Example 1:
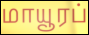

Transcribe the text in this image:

மாயூரப்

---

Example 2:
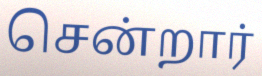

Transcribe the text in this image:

சென்றார்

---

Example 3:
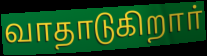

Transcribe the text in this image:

வாதாடுகிறார்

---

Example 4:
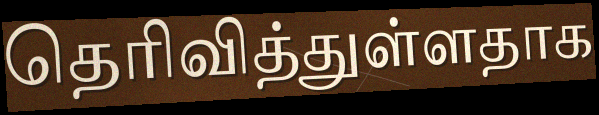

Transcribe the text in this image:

தெரிவித்துள்ளதாக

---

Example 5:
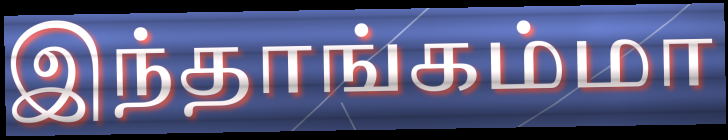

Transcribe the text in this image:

இந்தாங்கம்மா